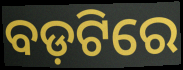
ବଡ଼ଟିରେ